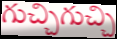
గుచ్చిగుచ్చి